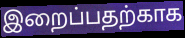
இறைப்பதற்காக